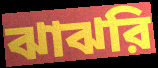
ঝাঝরি